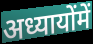
अध्यायोंमें